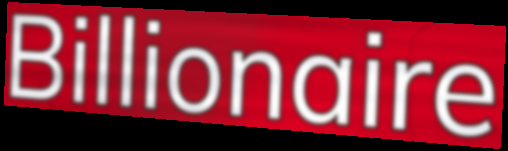
Billionaire